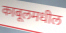
काबूलमधील